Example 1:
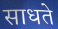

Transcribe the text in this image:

साधते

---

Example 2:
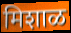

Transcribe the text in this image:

मिशाळ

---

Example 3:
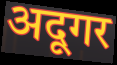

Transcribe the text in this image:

अदूगर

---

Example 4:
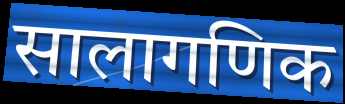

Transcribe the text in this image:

सालागणिक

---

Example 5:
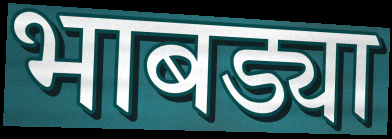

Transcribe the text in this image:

भाबड्या